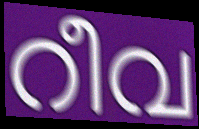
റീവ